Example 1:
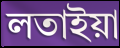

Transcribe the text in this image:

লতাইয়া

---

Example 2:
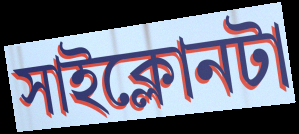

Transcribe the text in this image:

সাইক্লোনটা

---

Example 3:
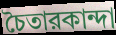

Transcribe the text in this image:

চৈতারকান্দা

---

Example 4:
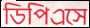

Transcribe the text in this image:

ডিপিএসে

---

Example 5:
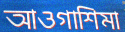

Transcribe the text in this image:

আওগাশিমা